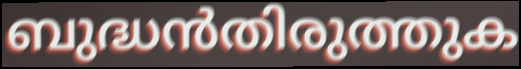
ബുദ്ധൻതിരുത്തുക